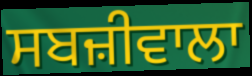
ਸਬਜ਼ੀਵਾਲਾ